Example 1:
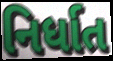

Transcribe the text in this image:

નિર્ધાત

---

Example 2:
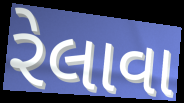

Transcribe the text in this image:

રેલાવા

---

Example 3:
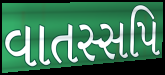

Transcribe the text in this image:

વાતસ્સપિ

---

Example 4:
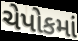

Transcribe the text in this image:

ચેપોકમાં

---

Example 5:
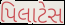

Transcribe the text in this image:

પિલાટેસ